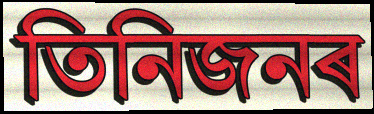
তিনিজনৰ